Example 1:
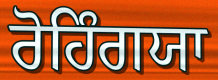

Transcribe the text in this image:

ਰੋਹਿੰਗਯਾ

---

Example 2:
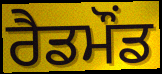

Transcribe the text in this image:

ਰੈਡਮੌਂਡ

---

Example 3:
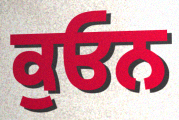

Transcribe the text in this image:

ਕੁਓਨ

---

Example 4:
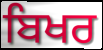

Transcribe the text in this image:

ਬਿਖਰ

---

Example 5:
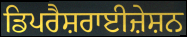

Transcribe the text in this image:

ਡਿਪਰੈਸ਼ਰਾਈਜ਼ੇਸ਼ਨ